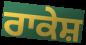
ਰਾਕੇਸ਼